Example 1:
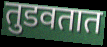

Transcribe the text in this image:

तुडवतात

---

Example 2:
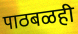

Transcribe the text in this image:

पाठबळही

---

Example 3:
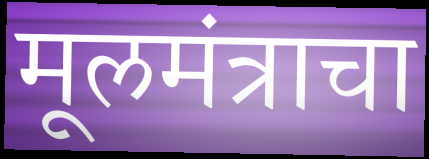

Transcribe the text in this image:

मूलमंत्राचा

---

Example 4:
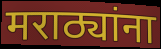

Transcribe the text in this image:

मराठ्यांना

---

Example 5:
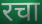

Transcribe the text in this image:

रचा